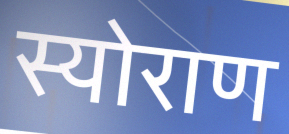
स्योराण